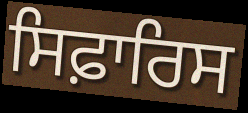
ਸਿਫ਼ਾਰਿਸ